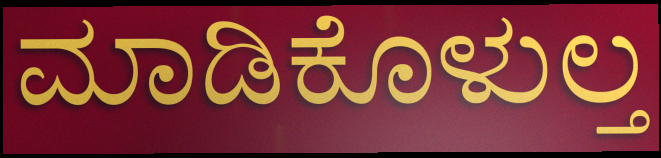
ಮಾಡಿಕೊಳುಲ್ತ